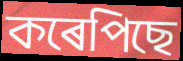
কৰেপিছে